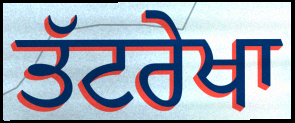
ਤੱਟਰੇਖਾ